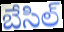
బేసిల్